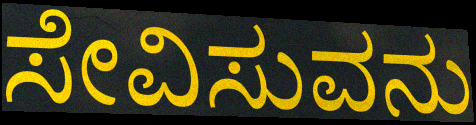
ಸೇವಿಸುವನು